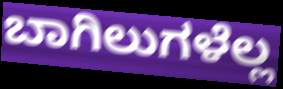
ಬಾಗಿಲುಗಳೆಲ್ಲ